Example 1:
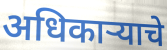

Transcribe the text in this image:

अधिकाऱ्याचे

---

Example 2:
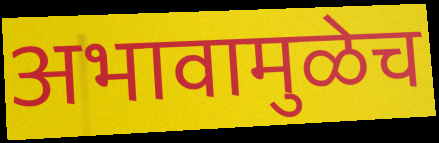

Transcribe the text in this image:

अभावामुळेच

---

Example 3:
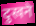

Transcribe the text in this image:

दुखने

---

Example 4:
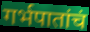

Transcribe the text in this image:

गर्भपातांचं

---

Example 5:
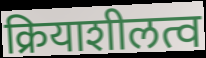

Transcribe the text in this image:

क्रियाशीलत्व